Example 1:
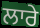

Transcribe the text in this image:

ਲਾਰੇ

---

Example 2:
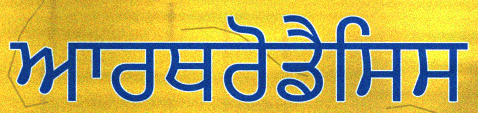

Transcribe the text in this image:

ਆਰਥਰੋਡੈਸਿਸ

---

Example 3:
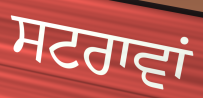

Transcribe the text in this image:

ਸਟਰਾਵਾਂ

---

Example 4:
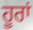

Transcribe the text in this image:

ਹੂਰਾਂ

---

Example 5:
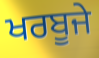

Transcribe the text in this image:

ਖਰਬੂਜੇ